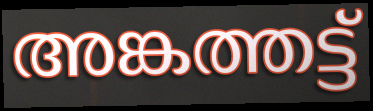
അങ്കത്തട്ട്